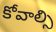
కోవాల్సి